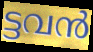
ട്ടവൻ